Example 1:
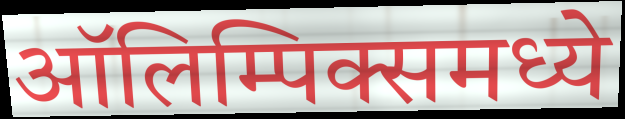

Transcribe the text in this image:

ऑलिम्पिक्समध्ये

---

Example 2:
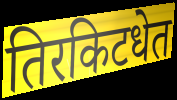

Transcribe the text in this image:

तिरकिटधेत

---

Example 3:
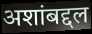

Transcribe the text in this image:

अशांबद्दल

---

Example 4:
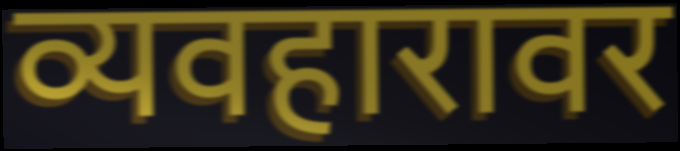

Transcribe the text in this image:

व्यवहारावर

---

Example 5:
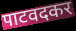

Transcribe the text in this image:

पाटवदकर